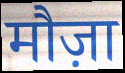
मौज़ा